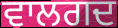
ਵਾਲਗਦ